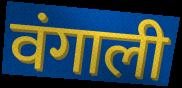
वंगाली